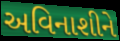
અવિનાશીને